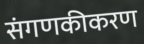
संगणकीकरण